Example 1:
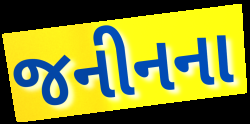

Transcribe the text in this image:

જનીનના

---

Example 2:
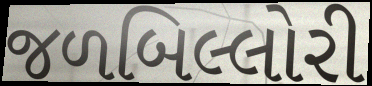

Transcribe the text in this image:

જળબિલ્લોરી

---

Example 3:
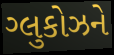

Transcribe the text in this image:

ગ્લુકોઝને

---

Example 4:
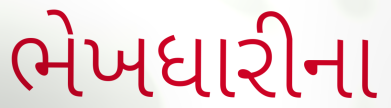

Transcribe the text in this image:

ભેખધારીના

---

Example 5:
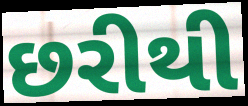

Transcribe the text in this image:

છરીથી